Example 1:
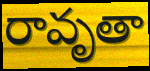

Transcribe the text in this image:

రావృతా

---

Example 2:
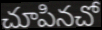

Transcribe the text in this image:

చూపినచో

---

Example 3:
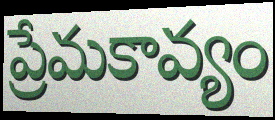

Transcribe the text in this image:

ప్రేమకావ్యం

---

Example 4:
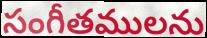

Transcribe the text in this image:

సంగీతములను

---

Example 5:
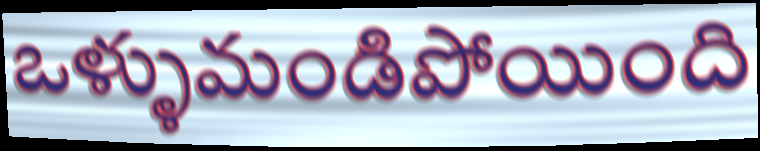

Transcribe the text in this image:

ఒళ్ళుమండిపోయింది